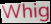
Whig